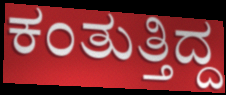
ಕಂತುತ್ತಿದ್ದ